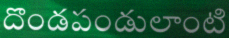
దొండపండులాంటి